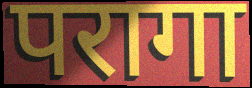
परागा